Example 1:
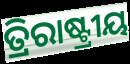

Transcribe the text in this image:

ତ୍ରିରାଷ୍ଟ୍ରୀୟ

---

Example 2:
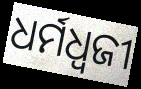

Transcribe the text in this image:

ଧର୍ମଧ୍ୱଜୀ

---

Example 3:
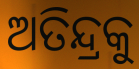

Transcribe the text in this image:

ଅତିନ୍ଦ୍ରକୁ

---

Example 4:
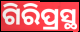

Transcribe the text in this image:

ଗିରିପ୍ରସ୍ଥ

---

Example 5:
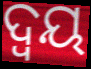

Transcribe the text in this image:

ଦ୍ୱୟ